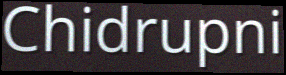
Chidrupni